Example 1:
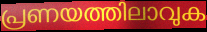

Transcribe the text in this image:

പ്രണയത്തിലാവുക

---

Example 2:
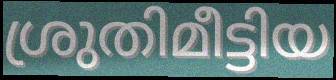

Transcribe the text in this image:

ശ്രുതിമീട്ടിയ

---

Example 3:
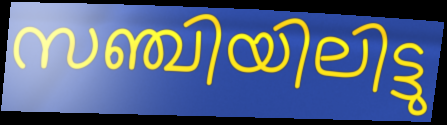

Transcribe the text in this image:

സഞ്ചിയിലിട്ടു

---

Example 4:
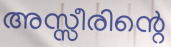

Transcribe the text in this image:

അസ്സീരിന്റെ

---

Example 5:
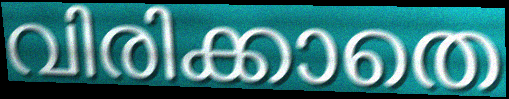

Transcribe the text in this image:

വിരിക്കാതെ